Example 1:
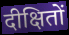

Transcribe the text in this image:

दीक्षितों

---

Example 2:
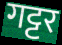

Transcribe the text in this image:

गट्टर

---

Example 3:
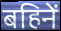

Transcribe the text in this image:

बहिनें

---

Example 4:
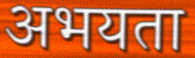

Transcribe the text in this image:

अभयता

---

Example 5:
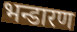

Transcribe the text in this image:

भन्डारण